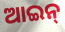
ଆଇନ୍